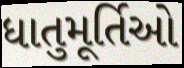
ધાતુમૂર્તિઓ